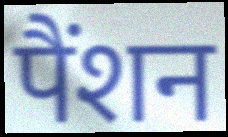
पैंशन